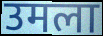
उमला